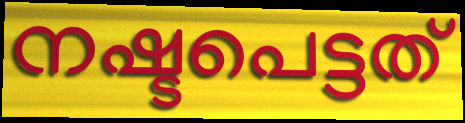
നഷ്ടപെട്ടത്